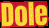
Dole